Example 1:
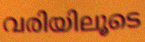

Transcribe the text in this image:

വരിയിലൂടെ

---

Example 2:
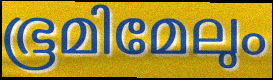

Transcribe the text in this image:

ഭൂമിമേലും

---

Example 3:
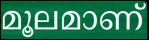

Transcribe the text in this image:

മൂലമാണ്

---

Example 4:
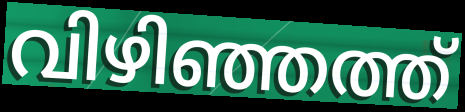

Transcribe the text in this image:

വിഴിഞ്ഞത്ത്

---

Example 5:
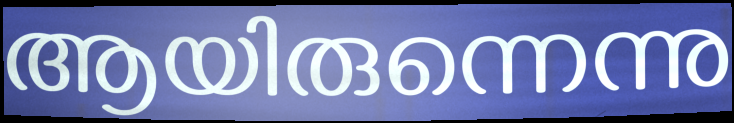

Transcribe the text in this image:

ആയിരുന്നെന്നു